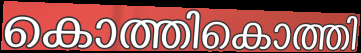
കൊത്തികൊത്തി